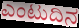
ಎಂಟುದಿನ